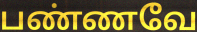
பண்ணவே